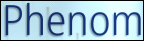
Phenom